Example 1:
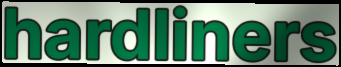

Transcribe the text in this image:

hardliners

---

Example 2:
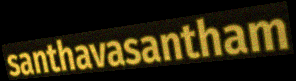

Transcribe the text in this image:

santhavasantham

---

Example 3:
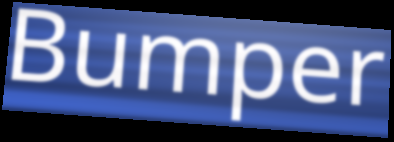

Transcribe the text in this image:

Bumper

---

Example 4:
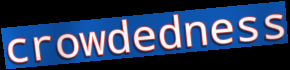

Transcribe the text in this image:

crowdedness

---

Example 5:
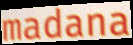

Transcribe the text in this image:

madana